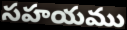
సహయము